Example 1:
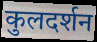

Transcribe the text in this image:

कुलदर्शन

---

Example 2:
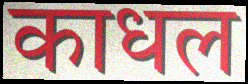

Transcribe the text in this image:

काधल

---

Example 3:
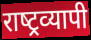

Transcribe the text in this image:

राष्‍ट्रव्‍यापी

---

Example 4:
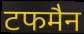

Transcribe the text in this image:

टफमैन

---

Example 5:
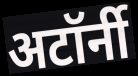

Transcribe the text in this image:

अटॉर्नी